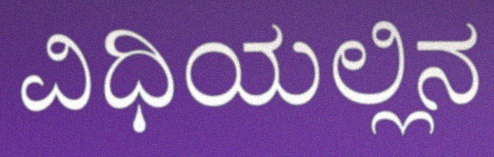
ವಿಧಿಯಲ್ಲಿನ